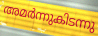
അമർന്നുകിടന്നു